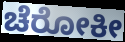
ಚೆರೋಕೀ